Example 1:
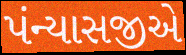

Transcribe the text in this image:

પંન્યાસજીએ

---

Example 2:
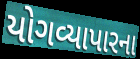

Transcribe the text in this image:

યોગવ્યાપારના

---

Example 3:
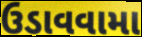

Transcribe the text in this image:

ઉડાવવામા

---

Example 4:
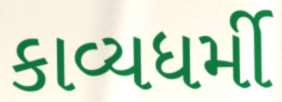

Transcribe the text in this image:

કાવ્યધર્મી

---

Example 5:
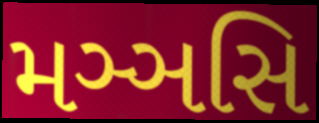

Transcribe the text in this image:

મઞ્ઞસિ